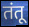
तंतू